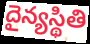
దైన్యస్థితి